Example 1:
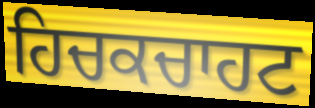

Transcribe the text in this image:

ਹਿਚਕਚਾਹਟ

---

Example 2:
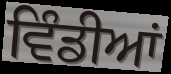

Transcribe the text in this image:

ਵਿੰਡੀਆਂ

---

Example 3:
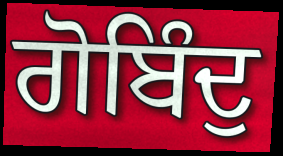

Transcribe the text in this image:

ਗੋਬਿੰਦੁ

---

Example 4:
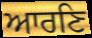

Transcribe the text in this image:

ਆਰਣਿ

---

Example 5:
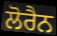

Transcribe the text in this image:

ਲੋਰੈਨ